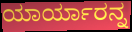
ಯಾರ್ಯಾರನ್ನ